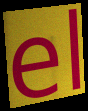
el